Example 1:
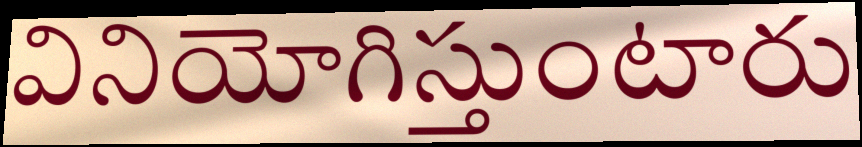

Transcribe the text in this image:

వినియోగిస్తుంటారు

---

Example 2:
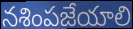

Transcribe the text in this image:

నశింపజేయాలి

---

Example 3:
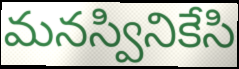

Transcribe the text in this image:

మనస్వినికేసి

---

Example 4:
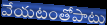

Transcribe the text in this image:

వేయటంతోపాటు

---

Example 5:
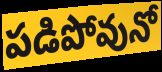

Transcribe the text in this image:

పడిపోవునో